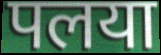
पलया